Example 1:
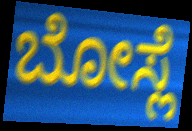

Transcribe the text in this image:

ಬೋಸ್ಲೆ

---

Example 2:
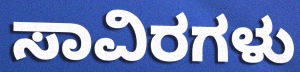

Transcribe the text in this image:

ಸಾವಿರಗಳು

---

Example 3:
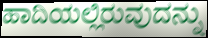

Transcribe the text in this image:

ಹಾದಿಯಲ್ಲಿರುವುದನ್ನು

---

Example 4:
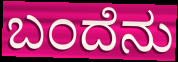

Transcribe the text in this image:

ಬಂದೆನು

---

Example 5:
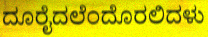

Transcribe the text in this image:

ದೂರೈದಲೆಂದೊರಲಿದಳು